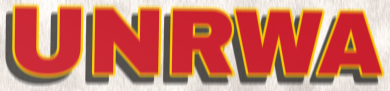
UNRWA